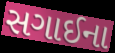
સગાઈના